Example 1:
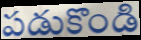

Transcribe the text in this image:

పడుకొండి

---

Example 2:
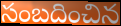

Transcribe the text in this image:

సంబదించిన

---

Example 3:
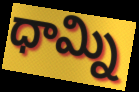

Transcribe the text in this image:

ధామ్ని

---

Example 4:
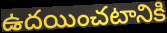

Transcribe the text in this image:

ఉదయించటానికి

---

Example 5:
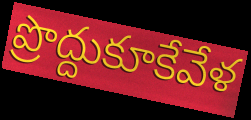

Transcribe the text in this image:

ప్రొద్దుకూకేవేళ